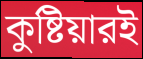
কুষ্টিয়ারই